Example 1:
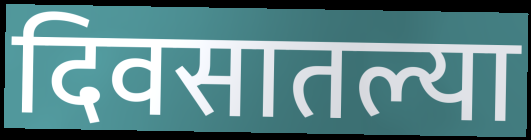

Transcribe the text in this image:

दिवसातल्या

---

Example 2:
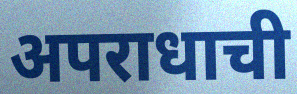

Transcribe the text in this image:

अपराधाची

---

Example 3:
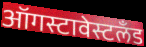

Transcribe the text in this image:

ऑगस्टावेस्टलँड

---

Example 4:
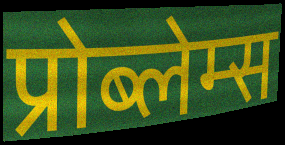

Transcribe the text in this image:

प्रोब्लेम्स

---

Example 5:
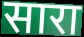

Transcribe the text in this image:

सारा